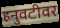
हनुवटीवर